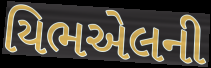
યિભએલની